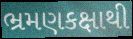
ભ્રમણકક્ષાથી